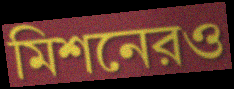
মিশনেরও